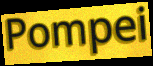
Pompei